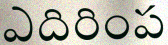
ఎదిరింప